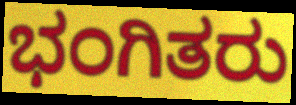
ಭಂಗಿತರು